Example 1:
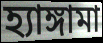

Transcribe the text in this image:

হ্যাঙ্গামা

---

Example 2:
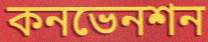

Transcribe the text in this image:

কনভেনশন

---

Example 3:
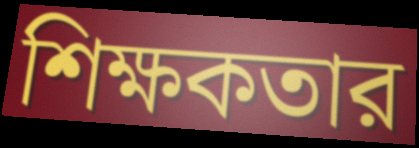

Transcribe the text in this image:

শিক্ষকতার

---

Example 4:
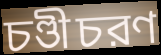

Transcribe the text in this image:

চণ্ডীচরণ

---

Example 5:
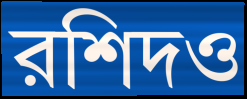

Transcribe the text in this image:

রশিদও